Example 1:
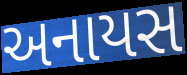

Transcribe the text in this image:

અનાયસ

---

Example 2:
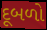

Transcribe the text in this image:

દૂબળો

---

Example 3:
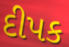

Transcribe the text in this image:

દીપક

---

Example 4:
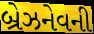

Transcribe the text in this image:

બ્રેઝનેવની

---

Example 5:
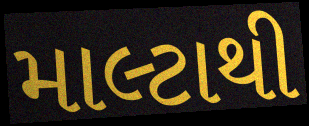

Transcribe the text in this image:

માલ્ટાથી